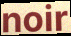
noir